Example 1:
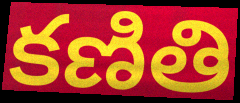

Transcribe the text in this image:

కణితి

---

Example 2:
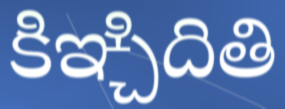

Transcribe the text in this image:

కిఞ్చిదితి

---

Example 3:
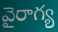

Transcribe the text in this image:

వైరాగ్య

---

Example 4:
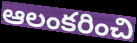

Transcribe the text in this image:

ఆలంకరించి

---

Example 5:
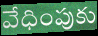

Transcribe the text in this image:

వేధింపుకు